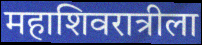
महाशिवरात्रीला